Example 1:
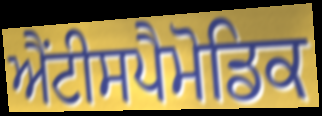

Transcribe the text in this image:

ਐਂਟੀਸਪੈਮੋਡਿਕ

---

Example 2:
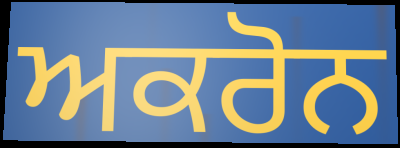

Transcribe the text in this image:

ਅਕਰੋਨ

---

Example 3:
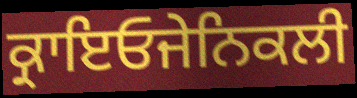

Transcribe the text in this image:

ਕ੍ਰਾਇਓਜੇਨਿਕਲੀ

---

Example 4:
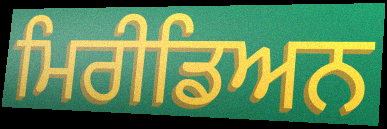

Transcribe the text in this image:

ਮਿਰੀਡਿਅਨ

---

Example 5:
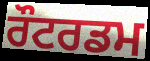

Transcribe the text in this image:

ਰੌਟਰਡਮ